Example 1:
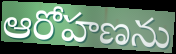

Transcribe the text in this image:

ఆరోహణను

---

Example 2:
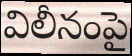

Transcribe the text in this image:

విలీనంపై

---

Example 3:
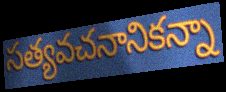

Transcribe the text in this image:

సత్యవచనానికన్నా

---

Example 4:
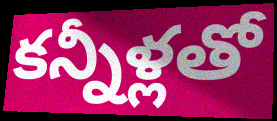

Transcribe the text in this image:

కన్నీళ్లతో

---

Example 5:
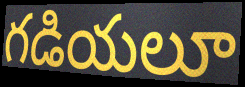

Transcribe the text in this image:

గడియలూ